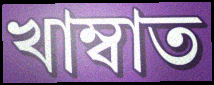
খাম্বাত